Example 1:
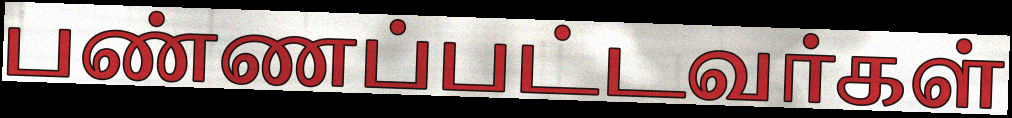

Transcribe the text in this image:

பண்ணப்பட்டவர்கள்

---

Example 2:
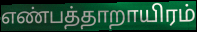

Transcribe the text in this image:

எண்பத்தாறாயிரம்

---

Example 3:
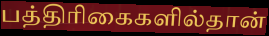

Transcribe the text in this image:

பத்திரிகைகளில்தான்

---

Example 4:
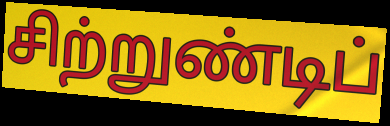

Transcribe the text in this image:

சிற்றுண்டிப்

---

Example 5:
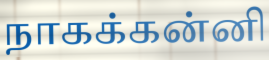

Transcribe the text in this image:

நாகக்கன்னி